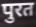
पुरत